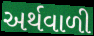
અર્થવાળી